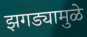
झगड्यामुळे